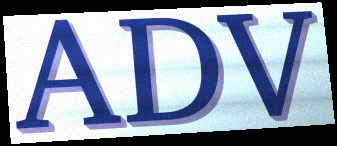
ADV